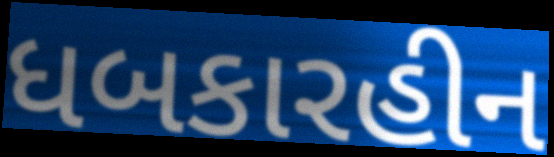
ધબકારહીન